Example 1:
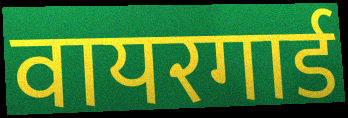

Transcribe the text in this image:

वायरगार्ड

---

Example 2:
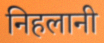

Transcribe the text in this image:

निहलानी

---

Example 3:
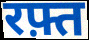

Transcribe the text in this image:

रफ़्त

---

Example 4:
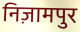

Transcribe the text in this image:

निज़ामपुर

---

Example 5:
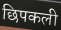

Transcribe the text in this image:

छिपकली